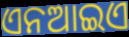
ଏନଆଇଏ